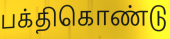
பக்திகொண்டு